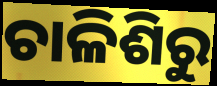
ଚାଳିଶିରୁ